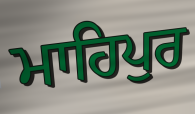
ਮਾਹਿਪੁਰ